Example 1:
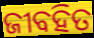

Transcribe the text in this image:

ଜୀବହିତ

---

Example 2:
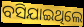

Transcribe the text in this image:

ବସିଯାଇଥିଲେ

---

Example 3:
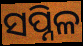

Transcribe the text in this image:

ସପ୍ନିଳ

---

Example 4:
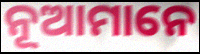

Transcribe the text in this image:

ନୂଆମାନେ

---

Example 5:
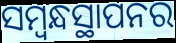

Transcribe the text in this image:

ସମ୍ବନ୍ଧସ୍ଥାପନର